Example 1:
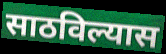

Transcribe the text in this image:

साठविल्यास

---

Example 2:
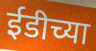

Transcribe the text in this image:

ईडीच्या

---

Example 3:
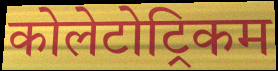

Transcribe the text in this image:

कोलेटोट्रिकम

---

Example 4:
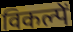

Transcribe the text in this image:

विकल्पें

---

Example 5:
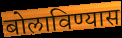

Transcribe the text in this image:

बोलाविण्यास